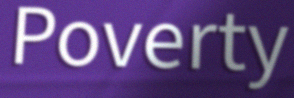
Poverty